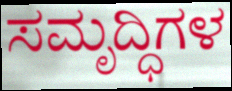
ಸಮೃದ್ಧಿಗಳ